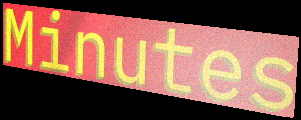
Minutes